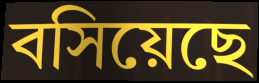
বসিয়েছে